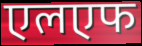
एलएफ